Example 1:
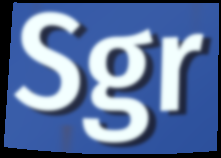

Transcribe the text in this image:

Sgr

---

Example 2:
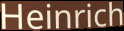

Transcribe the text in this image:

Heinrich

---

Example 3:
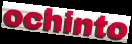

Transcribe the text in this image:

ochinto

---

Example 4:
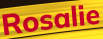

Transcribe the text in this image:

Rosalie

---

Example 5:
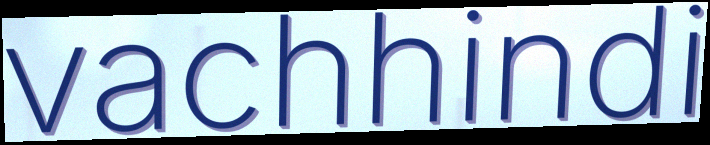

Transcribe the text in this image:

vachhindi